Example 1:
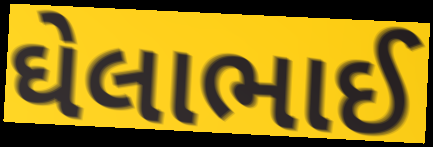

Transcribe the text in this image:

ઘેલાભાઈ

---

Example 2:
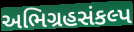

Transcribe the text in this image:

અભિગ્રહસંકલ્પ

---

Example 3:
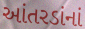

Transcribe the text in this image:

આંતરડાંનાં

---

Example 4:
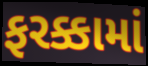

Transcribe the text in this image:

ફરક્કામાં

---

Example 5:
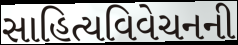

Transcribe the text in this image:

સાહિત્યવિવેચનની